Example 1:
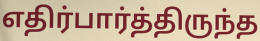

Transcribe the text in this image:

எதிர்பார்த்திருந்த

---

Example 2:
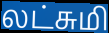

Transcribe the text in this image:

லட்சுமி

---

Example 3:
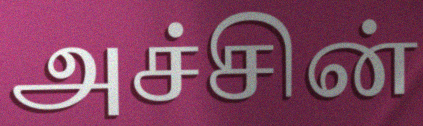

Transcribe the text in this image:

அச்சின்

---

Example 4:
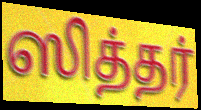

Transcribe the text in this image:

ஸித்தர்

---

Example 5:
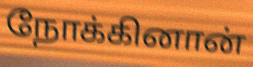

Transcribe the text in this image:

நோக்கினான்